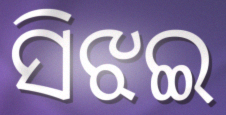
ସିଝଇ